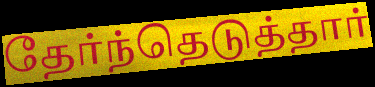
தேர்ந்தெடுத்தார்